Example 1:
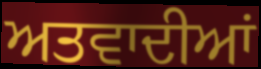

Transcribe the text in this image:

ਅਤਵਾਦੀਆਂ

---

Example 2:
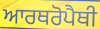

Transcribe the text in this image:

ਆਰਥਰੋਪੈਥੀ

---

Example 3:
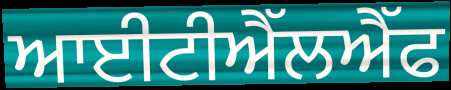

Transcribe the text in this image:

ਆਈਟੀਐੱਲਐੱਫ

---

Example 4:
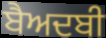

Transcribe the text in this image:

ਬੈਅਦਬੀ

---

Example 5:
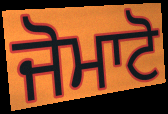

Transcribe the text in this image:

ਜੋਮਾਟੋ